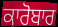
ਕਾਰੋਬਾਰ